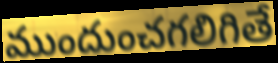
ముందుంచగలిగితే